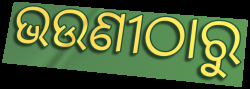
ଭଉଣୀଠାରୁ